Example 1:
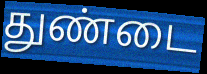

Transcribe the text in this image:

துண்டை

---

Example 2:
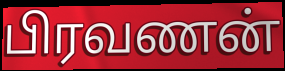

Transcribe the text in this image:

பிரவணன்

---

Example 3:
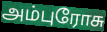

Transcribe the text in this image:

அம்புரோசு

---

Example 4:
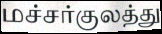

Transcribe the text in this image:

மச்சர்குலத்து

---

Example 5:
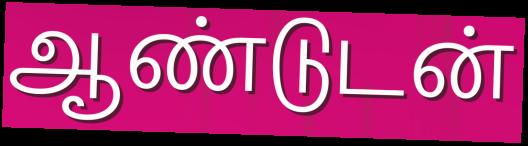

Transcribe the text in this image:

ஆண்டுடன்